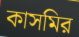
কাসমির